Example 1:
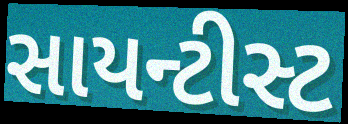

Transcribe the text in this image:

સાયન્ટીસ્ટ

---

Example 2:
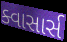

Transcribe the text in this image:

ક્વાસાર્સ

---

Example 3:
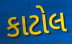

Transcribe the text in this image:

કાટોલ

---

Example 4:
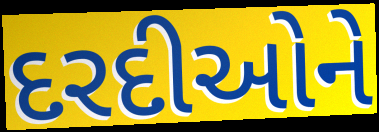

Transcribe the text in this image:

દરદીઓને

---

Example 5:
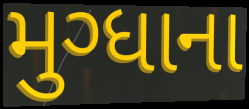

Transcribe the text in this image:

મુગ્ધાના